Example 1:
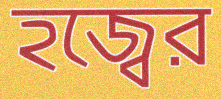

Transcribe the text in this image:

হজ্বের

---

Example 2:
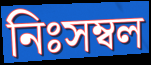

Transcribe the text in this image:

নিঃসম্বল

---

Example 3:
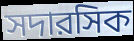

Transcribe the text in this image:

সদারসিক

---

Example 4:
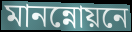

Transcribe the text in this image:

মানন্নোয়নে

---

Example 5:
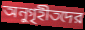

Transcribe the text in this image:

অনুগৃহীতদের